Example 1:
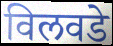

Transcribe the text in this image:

विलवडे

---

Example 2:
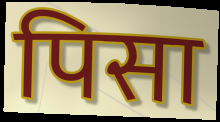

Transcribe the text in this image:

पिसा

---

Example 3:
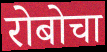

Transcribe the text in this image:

रोबोचा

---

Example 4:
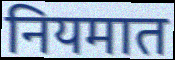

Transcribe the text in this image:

नियमात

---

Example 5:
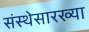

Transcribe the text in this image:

संस्थेसारख्या